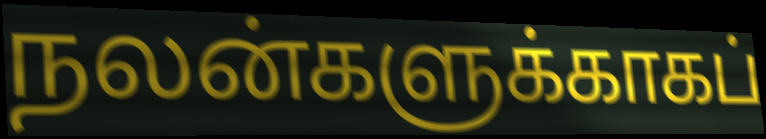
நலன்களுக்காகப்